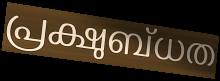
പ്രക്ഷുബ്ധത